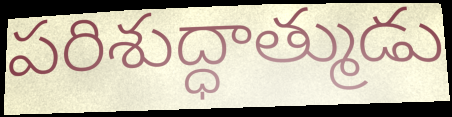
పరిశుద్ధాత్ముడు